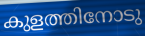
കുളത്തിനോടു